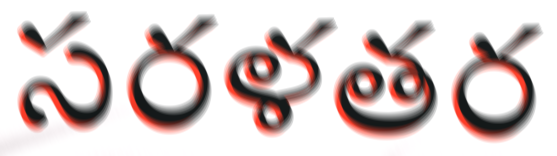
సరళతర